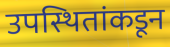
उपस्थितांकडून